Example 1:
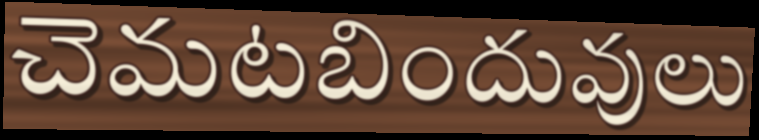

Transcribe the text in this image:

చెమటబిందువులు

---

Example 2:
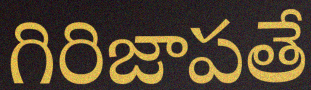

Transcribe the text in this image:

గిరిజాపతే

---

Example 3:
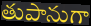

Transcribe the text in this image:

తుపానుగా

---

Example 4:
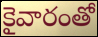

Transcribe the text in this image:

కైవారంతో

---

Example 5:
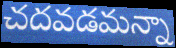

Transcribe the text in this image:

చదవడమన్నా